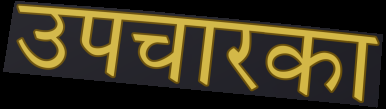
उपचारका